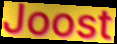
Joost